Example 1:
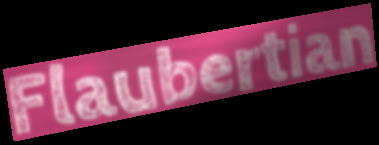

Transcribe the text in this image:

Flaubertian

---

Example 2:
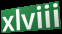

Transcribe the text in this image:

xlviii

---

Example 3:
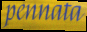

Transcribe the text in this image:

pennata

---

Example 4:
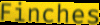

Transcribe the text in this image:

Finches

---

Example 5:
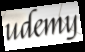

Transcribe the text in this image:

udemy